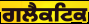
ਗਲੈਕਟਿਕ